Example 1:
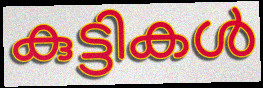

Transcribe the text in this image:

കുട്ടികൾ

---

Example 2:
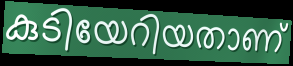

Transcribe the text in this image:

കുടിയേറിയതാണ്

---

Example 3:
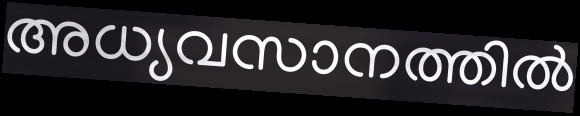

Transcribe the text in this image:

അധ്യവസാനത്തിൽ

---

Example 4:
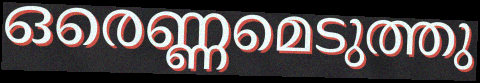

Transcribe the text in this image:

ഒരെണ്ണമെടുത്തു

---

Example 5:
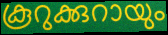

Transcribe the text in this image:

കൂറുക്കുറായും